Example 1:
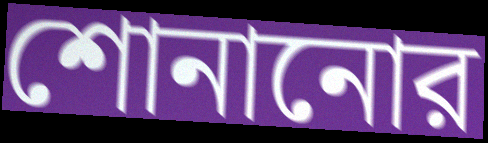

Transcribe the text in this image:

শোনানোর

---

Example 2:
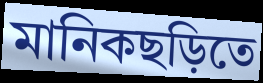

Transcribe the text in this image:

মানিকছড়িতে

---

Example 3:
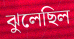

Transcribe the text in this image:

ঝুলেছিল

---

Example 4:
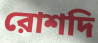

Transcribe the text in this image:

রোশদি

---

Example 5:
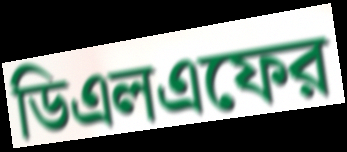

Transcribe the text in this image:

ডিএলএফের